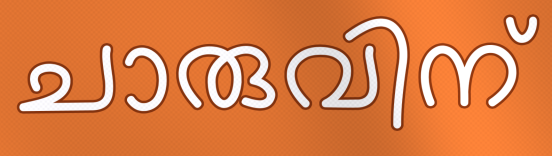
ചാരുവിന്